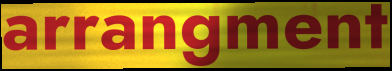
arrangment